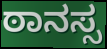
ಠಾನಸ್ಸ